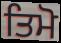
ਤਿਮੋ